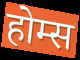
होम्स